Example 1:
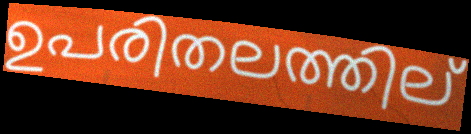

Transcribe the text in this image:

ഉപരിതലത്തില്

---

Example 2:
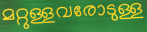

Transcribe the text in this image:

മറ്റുള്ളവരോടുള്ള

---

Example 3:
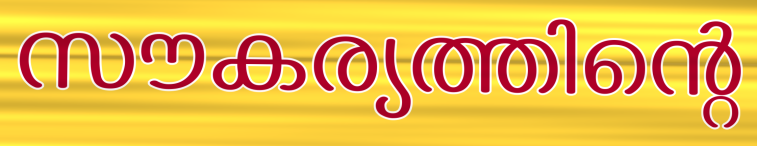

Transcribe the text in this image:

സൗകര്യത്തിന്റെ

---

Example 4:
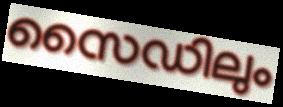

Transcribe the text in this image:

സൈഡിലും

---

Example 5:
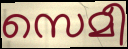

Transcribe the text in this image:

സെമീ